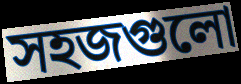
সহজগুলো